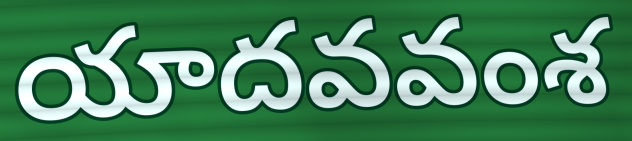
యాదవవంశ